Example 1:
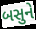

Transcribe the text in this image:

બસુને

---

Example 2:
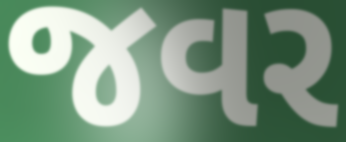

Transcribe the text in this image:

જવર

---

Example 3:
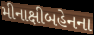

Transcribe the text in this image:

મીનાક્ષીબહેનના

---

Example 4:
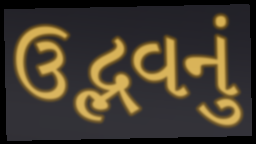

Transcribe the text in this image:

ઉદ્ભવનું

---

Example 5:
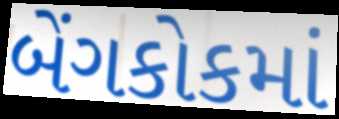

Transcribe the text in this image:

બેંગકોકમાં